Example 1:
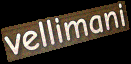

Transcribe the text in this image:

vellimani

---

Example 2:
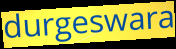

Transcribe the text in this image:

durgeswara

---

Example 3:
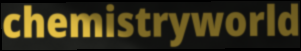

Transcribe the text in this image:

chemistryworld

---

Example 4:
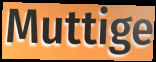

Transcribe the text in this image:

Muttige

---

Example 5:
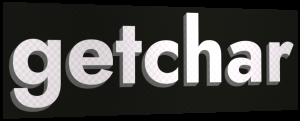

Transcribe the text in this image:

getchar